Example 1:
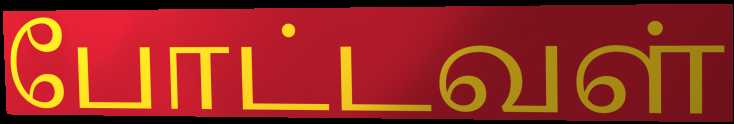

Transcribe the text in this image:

போட்டவள்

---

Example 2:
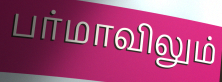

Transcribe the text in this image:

பர்மாவிலும்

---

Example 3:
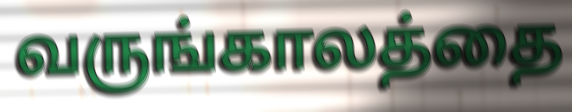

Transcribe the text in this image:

வருங்காலத்தை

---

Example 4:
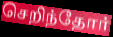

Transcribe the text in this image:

செறிந்தோர்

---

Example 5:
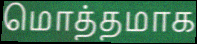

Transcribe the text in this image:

மொத்தமாக